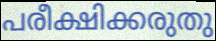
പരീക്ഷിക്കരുതു